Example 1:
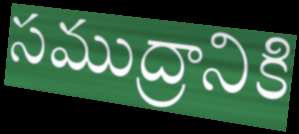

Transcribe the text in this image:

సముద్రానికి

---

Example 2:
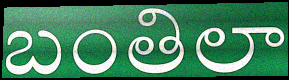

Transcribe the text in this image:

బంతిలా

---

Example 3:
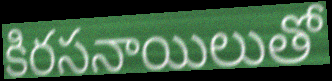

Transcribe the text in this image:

కిరసనాయిలుతో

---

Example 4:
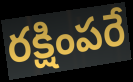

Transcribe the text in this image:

రక్షింపరే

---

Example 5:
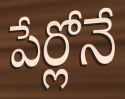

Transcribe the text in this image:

పేర్లోనే